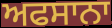
ਅਫਸਾਨਾ